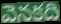
వెనకది